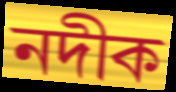
নদীক